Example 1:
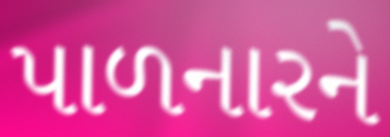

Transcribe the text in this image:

પાળનારને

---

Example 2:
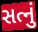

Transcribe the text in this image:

સત્નું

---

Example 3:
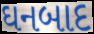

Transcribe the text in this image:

ઘનબાદ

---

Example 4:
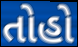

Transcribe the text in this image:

તોહો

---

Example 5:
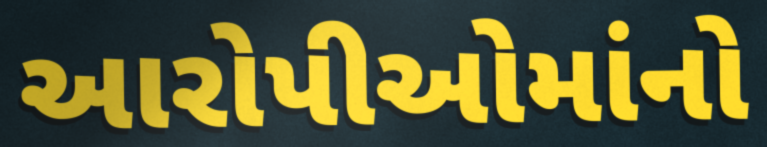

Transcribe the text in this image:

આરોપીઓમાંનો